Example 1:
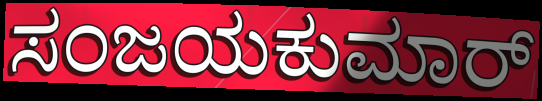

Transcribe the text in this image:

ಸಂಜಯಕುಮಾರ್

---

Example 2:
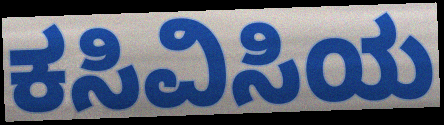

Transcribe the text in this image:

ಕಸಿವಿಸಿಯ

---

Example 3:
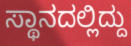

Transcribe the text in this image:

ಸ್ಥಾನದಲ್ಲಿದ್ದು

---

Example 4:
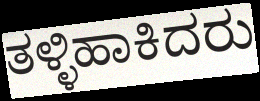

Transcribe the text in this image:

ತಳ್ಳಿಹಾಕಿದರು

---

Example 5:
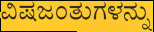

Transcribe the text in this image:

ವಿಷಜಂತುಗಳನ್ನು